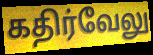
கதிர்வேலு